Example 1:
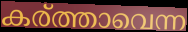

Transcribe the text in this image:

കര്ത്താവെന്ന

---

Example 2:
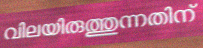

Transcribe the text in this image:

വിലയിരുത്തുന്നതിന്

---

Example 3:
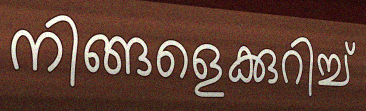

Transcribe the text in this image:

നിങ്ങളെക്കുറിച്ച്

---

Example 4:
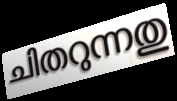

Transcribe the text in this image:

ചിതറുന്നതു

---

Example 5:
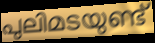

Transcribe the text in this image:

പുലിമടയുണ്ട്